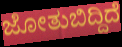
ಜೋತುಬಿದ್ದಿದೆ